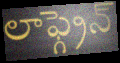
లాఫ్గ్రెన్